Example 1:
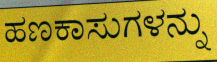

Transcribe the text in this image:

ಹಣಕಾಸುಗಳನ್ನು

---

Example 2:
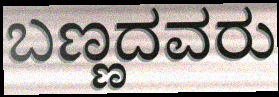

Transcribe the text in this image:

ಬಣ್ಣದವರು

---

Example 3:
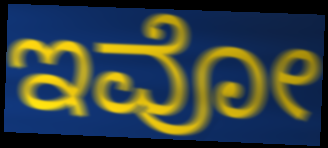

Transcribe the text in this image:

ಇವೋ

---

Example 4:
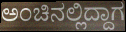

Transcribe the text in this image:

ಅಂಚಿನಲ್ಲಿದ್ದಾಗ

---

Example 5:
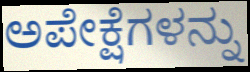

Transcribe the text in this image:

ಅಪೇಕ್ಷೆಗಳನ್ನು